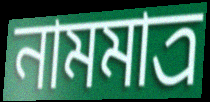
নামমাত্র